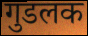
गुडलक